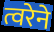
त्वरेने